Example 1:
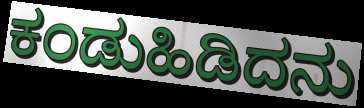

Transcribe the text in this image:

ಕಂಡುಹಿಡಿದನು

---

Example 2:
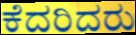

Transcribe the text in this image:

ಕೆದರಿದರು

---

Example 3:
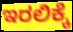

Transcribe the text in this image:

ಇರಲಿಕ್ಕೆ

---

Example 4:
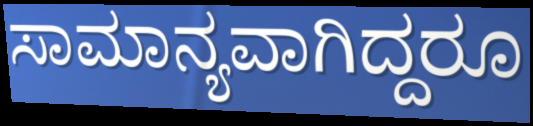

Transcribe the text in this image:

ಸಾಮಾನ್ಯವಾಗಿದ್ದರೂ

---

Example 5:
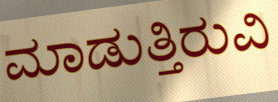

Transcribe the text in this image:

ಮಾಡುತ್ತಿರುವಿ